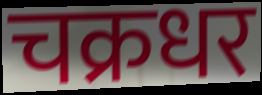
चक्रधर